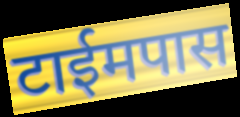
टाईमपास